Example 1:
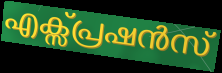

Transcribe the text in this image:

എക്സ്പ്രഷൻസ്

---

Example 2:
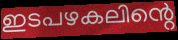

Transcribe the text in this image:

ഇടപഴകലിന്റെ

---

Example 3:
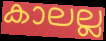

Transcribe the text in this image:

കാലല്ല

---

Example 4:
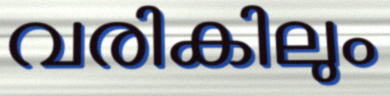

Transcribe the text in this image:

വരികിലും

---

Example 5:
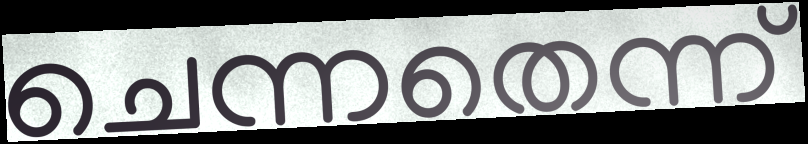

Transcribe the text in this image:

ചെന്നതെന്ന്